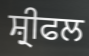
ਸ਼੍ਰੀਫਲ